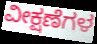
ವೀಕ್ಷಣೆಗಳ